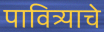
पावित्र्याचे